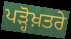
ਪੜ੍ਹੋਖ਼ਤਰੇ